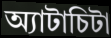
অ্যাটাচিটা